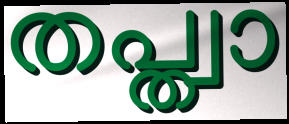
തപ്ത്വാ